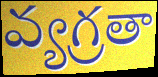
వ్యగ్రతా